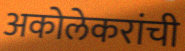
अकोलेकरांची